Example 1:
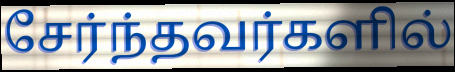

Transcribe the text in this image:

சேர்ந்தவர்களில்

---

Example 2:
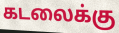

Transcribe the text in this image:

கடலைக்கு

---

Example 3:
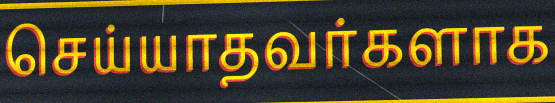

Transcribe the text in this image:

செய்யாதவர்களாக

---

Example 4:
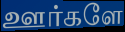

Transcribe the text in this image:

ஊர்களே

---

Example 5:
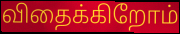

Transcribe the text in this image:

விதைக்கிறோம்